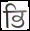
ਭਿ